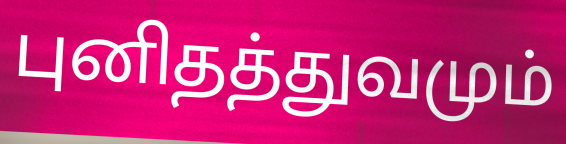
புனிதத்துவமும்